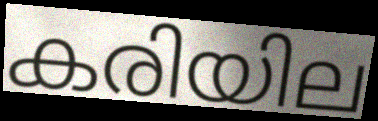
കരിയില